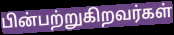
பின்பற்றுகிறவர்கள்